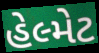
હેલ્મેટ